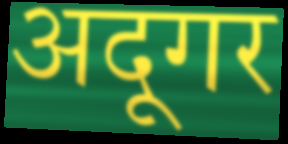
अदूगर